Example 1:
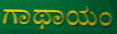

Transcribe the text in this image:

ಗಾಥಾಯಂ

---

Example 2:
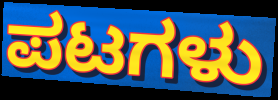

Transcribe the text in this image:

ಪಟಗಳು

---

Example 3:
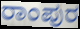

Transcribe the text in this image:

ರಾಂಪುರ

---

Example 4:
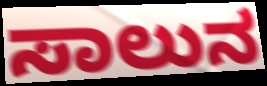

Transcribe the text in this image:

ಸಾಲುನ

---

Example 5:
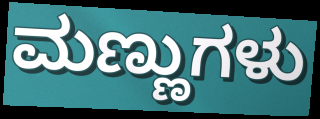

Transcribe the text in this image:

ಮಣ್ಣುಗಳು